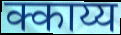
क्काय्य